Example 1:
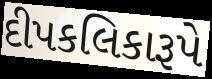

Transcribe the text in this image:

દીપકલિકારૂપે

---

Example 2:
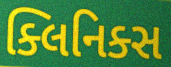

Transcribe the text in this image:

ક્લિનિક્સ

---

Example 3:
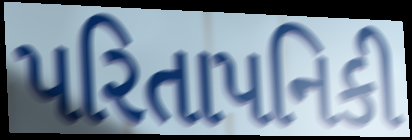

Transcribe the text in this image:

પરિતાપનિકી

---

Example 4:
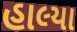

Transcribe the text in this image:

હાલ્યા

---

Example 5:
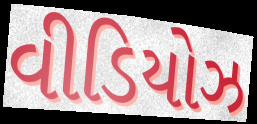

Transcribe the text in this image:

વીડિયોઝ